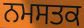
ਨਮਸਤਕ